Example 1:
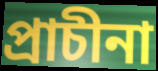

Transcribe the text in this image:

প্রাচীনা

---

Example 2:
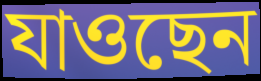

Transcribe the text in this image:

যাওছেন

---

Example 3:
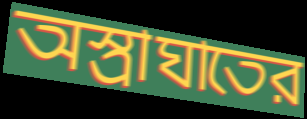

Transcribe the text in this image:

অস্ত্রাঘাতের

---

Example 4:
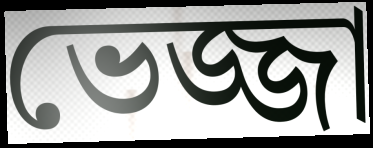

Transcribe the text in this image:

ভেজ্জা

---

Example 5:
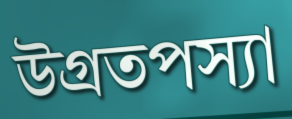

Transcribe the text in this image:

উগ্রতপস্যা